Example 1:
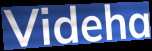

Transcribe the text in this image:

Videha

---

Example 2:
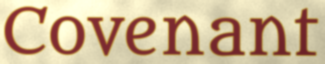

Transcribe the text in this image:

Covenant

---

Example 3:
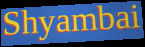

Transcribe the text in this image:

Shyambai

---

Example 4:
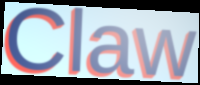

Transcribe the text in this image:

Claw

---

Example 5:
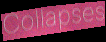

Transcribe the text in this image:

Collapses